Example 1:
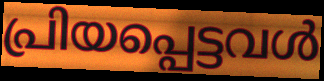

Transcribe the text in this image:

പ്രിയപ്പെട്ടവൾ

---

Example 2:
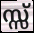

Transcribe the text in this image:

സ്സ്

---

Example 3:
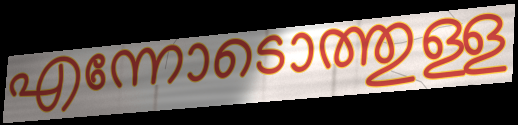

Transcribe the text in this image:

എന്നോടൊത്തുള്ള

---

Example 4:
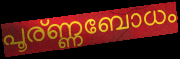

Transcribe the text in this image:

പൂര്ണ്ണബോധം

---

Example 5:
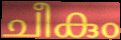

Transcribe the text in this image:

ചീകും